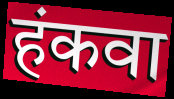
हंकवा